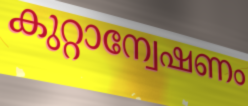
കുറ്റാന്വേഷണം